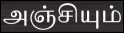
அஞ்சியும்